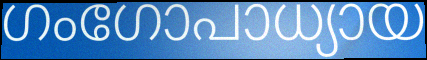
ഗംഗോപാധ്യായ